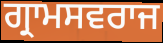
ਗ੍ਰਾਮਸਵਰਾਜ